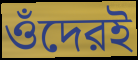
ওঁদেরই